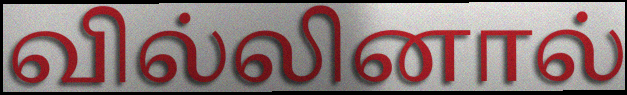
வில்லினால்